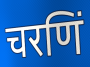
चरणिं